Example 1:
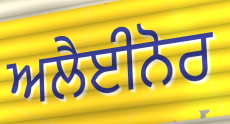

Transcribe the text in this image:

ਅਲੈਈਨੋਰ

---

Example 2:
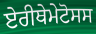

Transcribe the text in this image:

ਏਰੀਥੇਮੇਟੋਸਸ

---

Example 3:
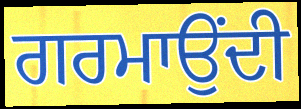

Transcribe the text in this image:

ਗਰਮਾਉਂਦੀ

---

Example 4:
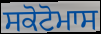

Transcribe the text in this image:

ਸਕੋਟੋਮਾਸ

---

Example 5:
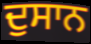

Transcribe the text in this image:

ਦੁਸਾਨ